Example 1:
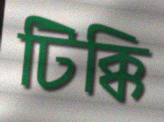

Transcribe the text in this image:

টিক্কি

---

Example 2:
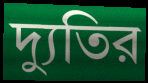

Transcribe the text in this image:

দ্যুতির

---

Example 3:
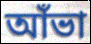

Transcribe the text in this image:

আঁভা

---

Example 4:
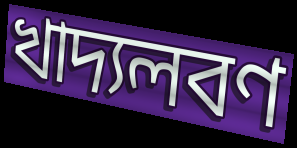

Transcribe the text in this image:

খাদ্যলবণ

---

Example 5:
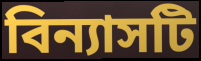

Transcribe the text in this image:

বিন্যাসটি